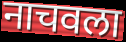
नाचवला